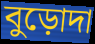
বুড়োদা